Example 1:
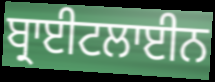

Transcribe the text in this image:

ਬ੍ਰਾਈਟਲਾਈਨ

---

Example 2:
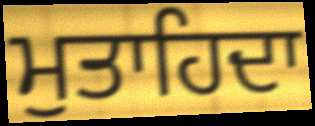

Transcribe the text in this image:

ਮੁਤਾਹਿਦਾ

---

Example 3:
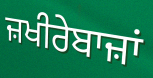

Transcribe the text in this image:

ਜ਼ਖੀਰੇਬਾਜ਼ਾਂ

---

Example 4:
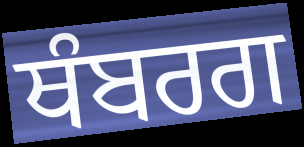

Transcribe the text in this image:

ਥੰਬਰਗ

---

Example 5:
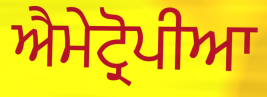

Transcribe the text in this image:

ਐਮੇਟ੍ਰੋਪੀਆ